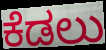
ಕೆಡಲು